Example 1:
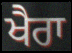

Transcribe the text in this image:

ਖੈਰਾ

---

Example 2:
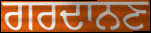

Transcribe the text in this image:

ਗਰਦਾਨਣ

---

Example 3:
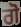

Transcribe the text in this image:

ਗੋ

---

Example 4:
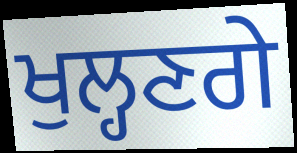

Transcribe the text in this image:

ਖੁਲ੍ਹਣਗੇ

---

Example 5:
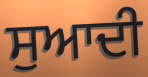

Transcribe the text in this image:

ਸੁਆਦੀ